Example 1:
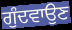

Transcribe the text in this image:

ਗੁੰਦਵਾਉਣ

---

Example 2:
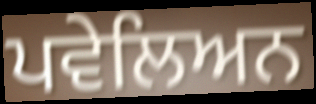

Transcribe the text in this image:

ਪਵੇਲਿਅਨ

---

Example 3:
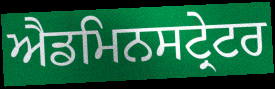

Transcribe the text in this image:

ਐਡਮਿਨਸਟ੍ਰੇਟਰ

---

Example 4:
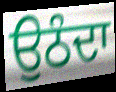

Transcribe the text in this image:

ਉਠੰਦਾ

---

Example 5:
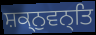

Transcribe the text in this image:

ਸ਼ਕ੍ਨੁਵਨ੍ਤਿ